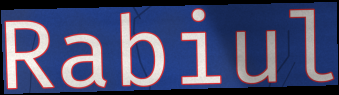
Rabiul